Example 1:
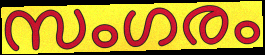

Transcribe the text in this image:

സംഗരം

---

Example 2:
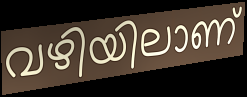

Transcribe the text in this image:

വഴിയിലാണ്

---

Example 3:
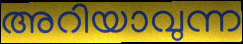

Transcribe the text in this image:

അറിയാവുന്ന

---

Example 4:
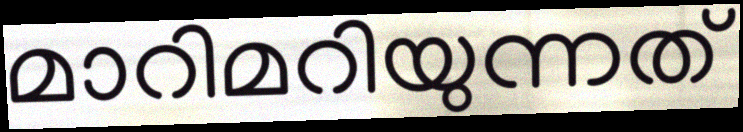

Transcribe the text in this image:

മാറിമറിയുന്നത്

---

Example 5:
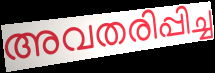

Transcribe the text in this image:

അവതരിപ്പിച്ച